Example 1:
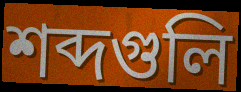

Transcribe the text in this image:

শব্দগুলি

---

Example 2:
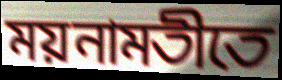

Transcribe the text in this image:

ময়নামতীতে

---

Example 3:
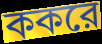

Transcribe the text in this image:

ককরে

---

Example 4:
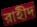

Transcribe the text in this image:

রাহীদ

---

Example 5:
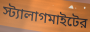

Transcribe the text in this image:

স্ট্যালাগমাইটের